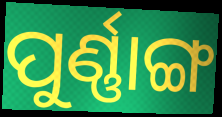
ପୁର୍ଣ୍ଣାଙ୍ଗ